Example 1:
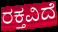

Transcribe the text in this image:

ರಕ್ತವಿದೆ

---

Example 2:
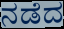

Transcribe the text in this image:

ನಡೆದ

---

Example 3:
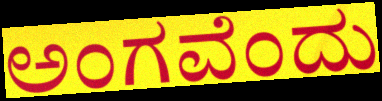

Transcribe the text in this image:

ಅಂಗವೆಂದು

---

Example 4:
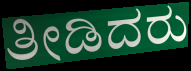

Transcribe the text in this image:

ತೀಡಿದರು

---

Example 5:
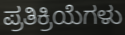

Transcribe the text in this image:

ಪ್ರತಿಕ್ರಿಯೆಗಳು